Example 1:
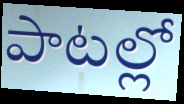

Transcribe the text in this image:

పాటల్లో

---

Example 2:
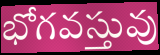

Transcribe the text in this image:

భోగవస్తువు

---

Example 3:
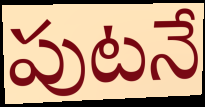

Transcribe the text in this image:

పుటనే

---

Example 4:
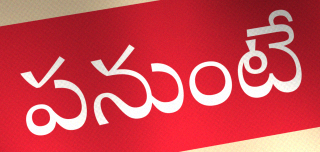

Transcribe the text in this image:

పనుంటే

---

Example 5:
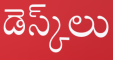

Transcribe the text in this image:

డెస్క్‌లు